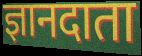
ज्ञानदाता